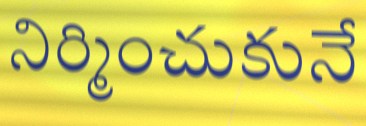
నిర్మించుకునే